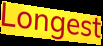
Longest